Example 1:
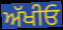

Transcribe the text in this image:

ਅੱਖੀਓ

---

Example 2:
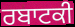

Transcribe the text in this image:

ਰਬਾਟਕੀ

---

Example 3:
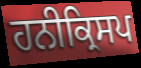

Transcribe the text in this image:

ਹਨੀਕ੍ਰਿਸਪ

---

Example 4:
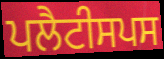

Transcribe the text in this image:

ਪਲੈਟੀਸਪਸ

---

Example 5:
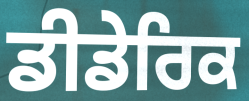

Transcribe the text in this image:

ਡੀਡੇਰਿਕ